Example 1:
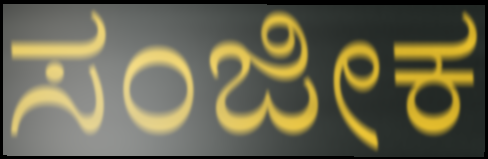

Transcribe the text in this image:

ಸಂಜೀಕ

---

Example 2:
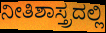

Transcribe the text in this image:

ನೀತಿಶಾಸ್ತ್ರದಲ್ಲಿ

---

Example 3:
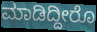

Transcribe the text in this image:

ಮಾಡಿದ್ದೀರೊ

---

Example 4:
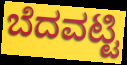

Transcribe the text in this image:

ಬೆದವಟ್ಟಿ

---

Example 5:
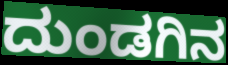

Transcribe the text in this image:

ದುಂಡಗಿನ